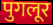
पुगलूर